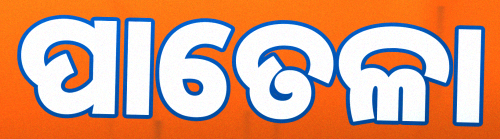
ପାତେଳା